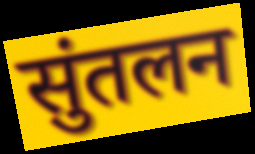
सुंतलन